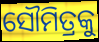
ସୌମିତ୍ରକୁ